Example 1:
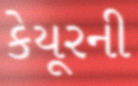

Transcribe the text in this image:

કેયૂરની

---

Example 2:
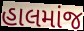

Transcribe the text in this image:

હાલમાંજ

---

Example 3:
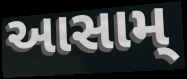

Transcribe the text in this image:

આસામ્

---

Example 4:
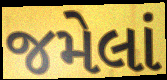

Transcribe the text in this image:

જમેલાં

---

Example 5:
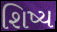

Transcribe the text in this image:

શિષ્ય